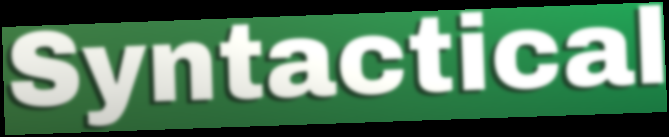
Syntactical